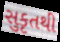
સુકૃતથી